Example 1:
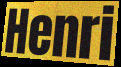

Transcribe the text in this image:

Henri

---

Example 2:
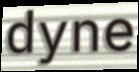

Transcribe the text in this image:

dyne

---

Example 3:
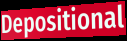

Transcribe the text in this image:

Depositional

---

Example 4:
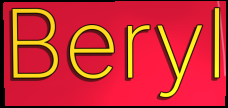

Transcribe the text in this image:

Beryl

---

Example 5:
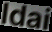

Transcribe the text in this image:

Idai